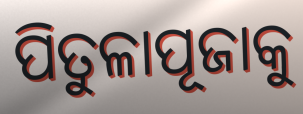
ପିତୁଳାପୂଜାକୁ